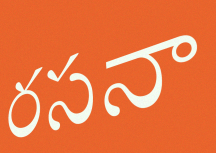
రసనా